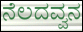
ನೆಲದವ್ವನ